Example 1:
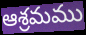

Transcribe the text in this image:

ఆశ్రమము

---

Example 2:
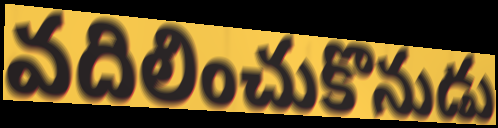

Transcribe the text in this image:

వదిలించుకొనుడు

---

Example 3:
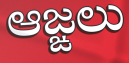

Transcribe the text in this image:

ఆజ్ఙలు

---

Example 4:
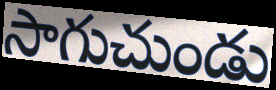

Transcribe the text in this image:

సాగుచుండు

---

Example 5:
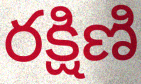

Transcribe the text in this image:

రక్షిణి